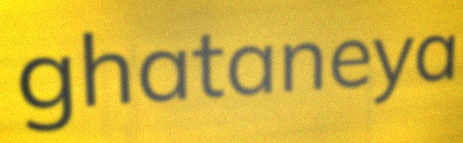
ghataneya